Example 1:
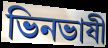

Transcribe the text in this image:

ভিনভাষী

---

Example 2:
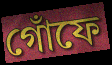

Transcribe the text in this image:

গোঁফে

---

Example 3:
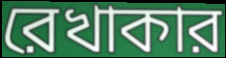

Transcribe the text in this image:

রেখাকার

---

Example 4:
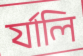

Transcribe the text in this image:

র্যালি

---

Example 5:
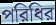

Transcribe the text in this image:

পরিধির